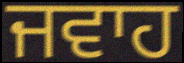
ਜਵਾਹ